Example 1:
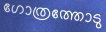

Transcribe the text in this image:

ഗോത്രത്തോടു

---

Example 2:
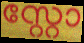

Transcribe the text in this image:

സ്റ്റോ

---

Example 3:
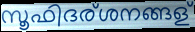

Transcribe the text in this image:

സൂഫിദര്ശനങ്ങള്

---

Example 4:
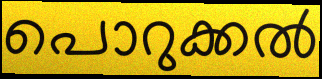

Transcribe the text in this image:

പൊറുക്കൽ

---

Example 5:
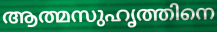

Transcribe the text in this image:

ആത്മസുഹൃത്തിനെ